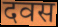
दवस